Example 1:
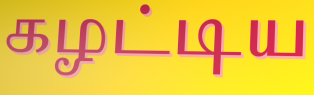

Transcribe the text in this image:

கழட்டிய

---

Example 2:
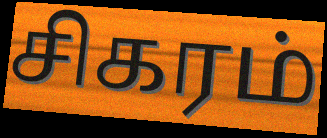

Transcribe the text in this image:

சிகரம்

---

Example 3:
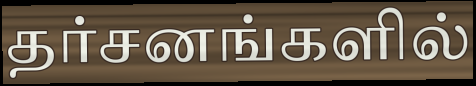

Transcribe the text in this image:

தர்சனங்களில்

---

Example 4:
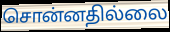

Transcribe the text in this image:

சொன்னதில்லை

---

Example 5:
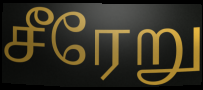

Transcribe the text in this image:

சீரேறு